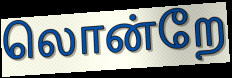
லொன்றே